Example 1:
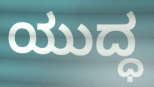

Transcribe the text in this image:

ಯುದ್ಧ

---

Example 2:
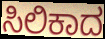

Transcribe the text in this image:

ಸಿಲಿಕಾದ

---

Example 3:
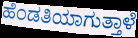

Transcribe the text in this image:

ಹೆಂಡತಿಯಾಗುತ್ತಾಳೆ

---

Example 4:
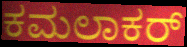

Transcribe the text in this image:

ಕಮಲಾಕರ್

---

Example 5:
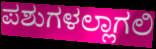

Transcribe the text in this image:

ಪಶುಗಳಲ್ಲಾಗಲಿ